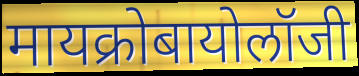
मायक्रोबायोलॉजी